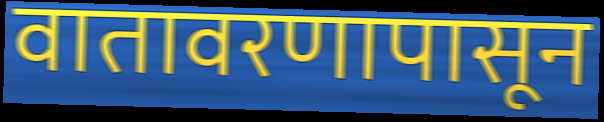
वातावरणापासून